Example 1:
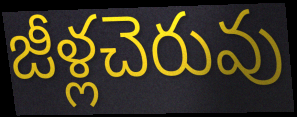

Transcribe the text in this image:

జీళ్లచెరువు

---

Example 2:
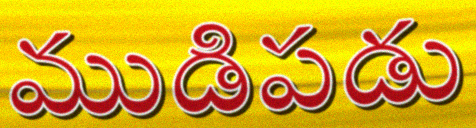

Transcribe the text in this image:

ముడిపడు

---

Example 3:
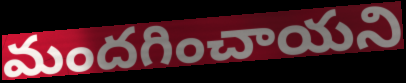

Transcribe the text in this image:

మందగించాయని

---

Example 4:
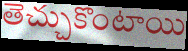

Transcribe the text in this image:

తెచ్చుకొంటాయి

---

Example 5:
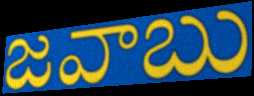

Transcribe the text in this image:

జవాబు